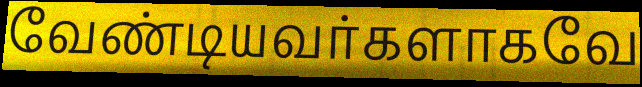
வேண்டியவர்களாகவே